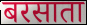
बरसाता